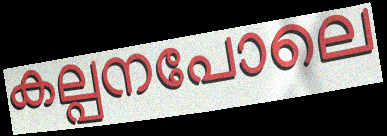
കല്പനപോലെ